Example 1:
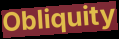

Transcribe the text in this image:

Obliquity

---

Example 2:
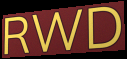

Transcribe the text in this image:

RWD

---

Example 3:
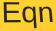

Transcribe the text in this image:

Eqn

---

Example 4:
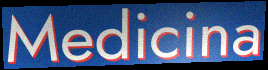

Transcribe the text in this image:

Medicina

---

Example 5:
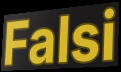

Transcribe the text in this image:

Falsi